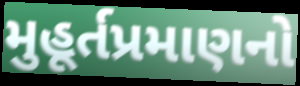
મુહૂર્તપ્રમાણનો